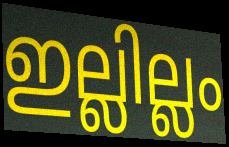
ഇല്ലില്ലം